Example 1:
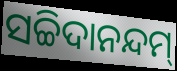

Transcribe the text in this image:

ସଚ୍ଚିଦାନନ୍ଦମ୍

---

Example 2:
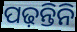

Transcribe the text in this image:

ପଢ଼ନ୍ତିନି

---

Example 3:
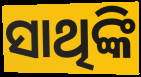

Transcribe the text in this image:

ସାଥିଙ୍କି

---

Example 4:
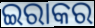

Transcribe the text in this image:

ଇରାକର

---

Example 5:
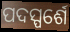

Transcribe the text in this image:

ପଦସ୍ପର୍ଶେ